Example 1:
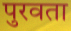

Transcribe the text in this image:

पुरवता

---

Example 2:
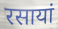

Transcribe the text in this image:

रसायां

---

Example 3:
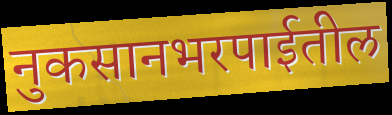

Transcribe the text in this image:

नुकसानभरपाईतील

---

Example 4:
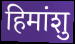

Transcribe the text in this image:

हिमांशु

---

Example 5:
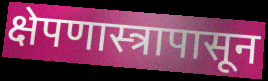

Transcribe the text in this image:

क्षेपणास्त्रापासून